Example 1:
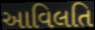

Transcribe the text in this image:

આવિલતિ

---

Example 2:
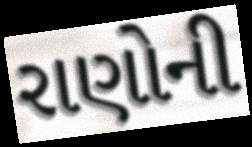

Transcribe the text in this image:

રાણોની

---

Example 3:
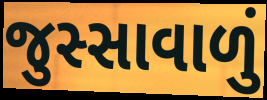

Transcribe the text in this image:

જુસ્સાવાળું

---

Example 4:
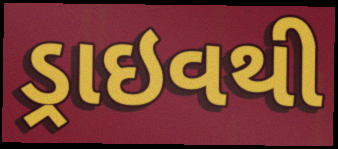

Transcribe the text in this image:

ડ્રાઇવથી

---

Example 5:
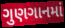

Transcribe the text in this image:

ગુણગાનમાં